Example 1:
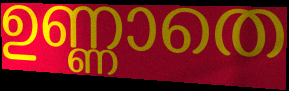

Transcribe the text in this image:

ഉണ്ണാതെ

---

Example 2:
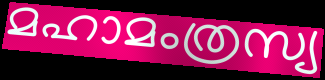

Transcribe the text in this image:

മഹാമംത്രസ്യ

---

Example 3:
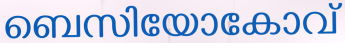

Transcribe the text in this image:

ബെസിയോകോവ്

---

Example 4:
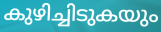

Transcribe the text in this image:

കുഴിച്ചിടുകയും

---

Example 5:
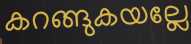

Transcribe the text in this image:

കറങ്ങുകയല്ലേ